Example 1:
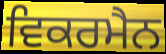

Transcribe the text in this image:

ਵਿਕਰਮੈਨ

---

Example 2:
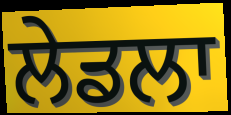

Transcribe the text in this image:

ਲੇਡਲਾ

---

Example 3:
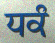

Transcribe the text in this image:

ਧਕੰ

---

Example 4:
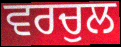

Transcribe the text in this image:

ਵਰਚੁਲ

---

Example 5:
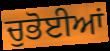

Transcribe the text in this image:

ਚੁਭੋਈਆਂ